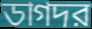
ডাগদর